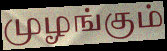
முழங்கும்